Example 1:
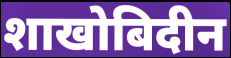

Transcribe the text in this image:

शाखोबिदीन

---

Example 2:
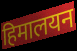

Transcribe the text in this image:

हिमालयन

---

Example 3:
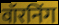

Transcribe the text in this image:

वॉरनिंग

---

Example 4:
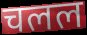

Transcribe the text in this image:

चलल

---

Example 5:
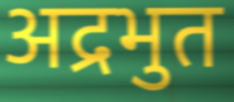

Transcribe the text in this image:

अद्रभुत